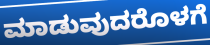
ಮಾಡುವುದರೊಳಗೆ